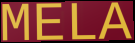
MELA